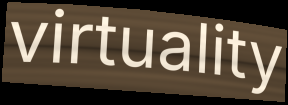
virtuality